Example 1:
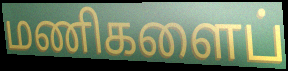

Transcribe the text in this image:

மணிகளைப்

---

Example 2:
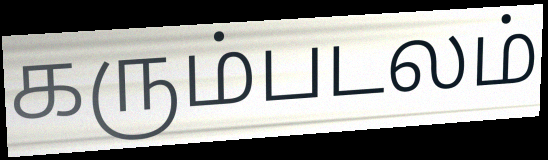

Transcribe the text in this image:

கரும்படலம்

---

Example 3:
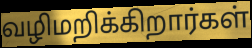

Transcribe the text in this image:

வழிமறிக்கிறார்கள்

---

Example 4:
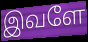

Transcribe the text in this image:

இவளே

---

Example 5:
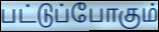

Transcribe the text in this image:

பட்டுப்போகும்